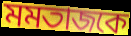
মমতাজকে